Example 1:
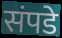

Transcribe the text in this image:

संपडे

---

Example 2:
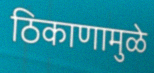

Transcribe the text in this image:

ठिकाणामुळे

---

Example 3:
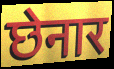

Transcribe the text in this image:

छेनार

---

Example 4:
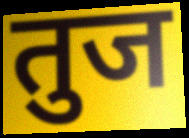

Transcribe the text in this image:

तुज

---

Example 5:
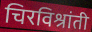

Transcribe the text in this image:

चिरविश्रांती